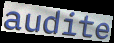
audite